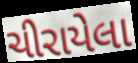
ચીરાયેલા